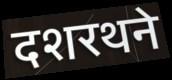
दशरथने